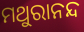
ମଥୁରାନନ୍ଦ